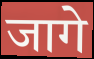
जागे